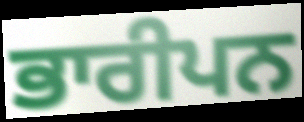
ਭਾਰੀਪਨ